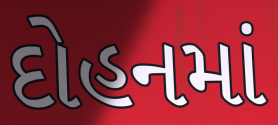
દોહનમાં